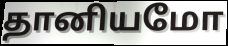
தானியமோ